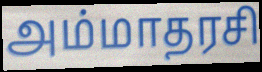
அம்மாதரசி